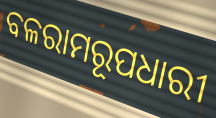
ବଳରାମରୂପଧାରୀ